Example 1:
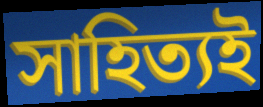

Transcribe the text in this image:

সাহিত্যই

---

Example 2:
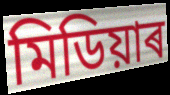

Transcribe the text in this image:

মিডিয়াৰ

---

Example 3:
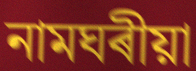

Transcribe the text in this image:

নামঘৰীয়া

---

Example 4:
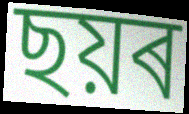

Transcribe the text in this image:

ছয়ৰ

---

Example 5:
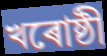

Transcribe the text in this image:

খৰোষ্ঠী